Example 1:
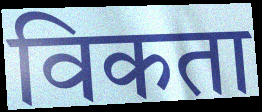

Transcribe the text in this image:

विकता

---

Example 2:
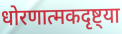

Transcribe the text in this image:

धोरणात्मकदृष्ट्या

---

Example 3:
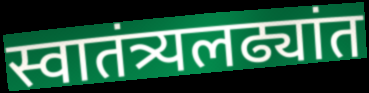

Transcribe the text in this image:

स्वातंत्र्यलढ्यांत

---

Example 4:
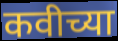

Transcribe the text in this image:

कवीच्या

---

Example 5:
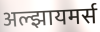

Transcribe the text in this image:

अल्झायमर्स